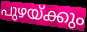
പുഴയ്ക്കും